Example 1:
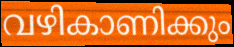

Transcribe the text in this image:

വഴികാണിക്കും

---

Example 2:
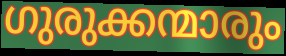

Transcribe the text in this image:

ഗുരുക്കന്മാരും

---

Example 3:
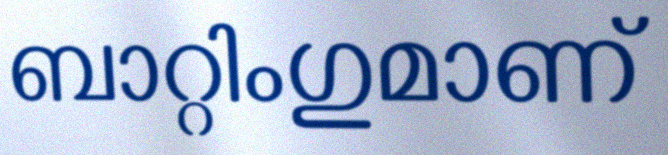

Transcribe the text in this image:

ബാറ്റിംഗുമാണ്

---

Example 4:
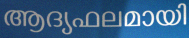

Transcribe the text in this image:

ആദ്യഫലമായി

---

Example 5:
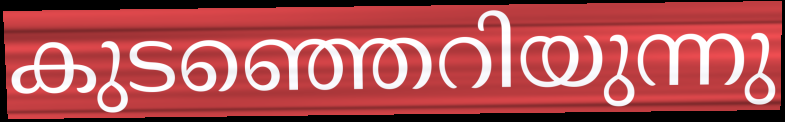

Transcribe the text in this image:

കുടഞ്ഞെറിയുന്നു